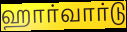
ஹார்வார்டு